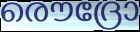
രൌദ്രോ